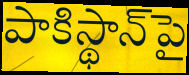
పాకిస్థాన్‌పై